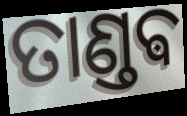
ତାଣ୍ଡଵ